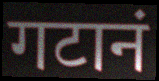
गटानं